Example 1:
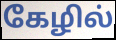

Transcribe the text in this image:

கேழில்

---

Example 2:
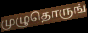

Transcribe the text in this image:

முழுதொருங்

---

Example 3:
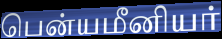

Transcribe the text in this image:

பென்யமீனியர்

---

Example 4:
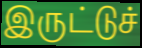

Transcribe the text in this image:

இருட்டுச்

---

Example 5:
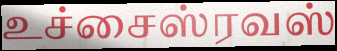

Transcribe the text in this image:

உச்சைஸ்ரவஸ்